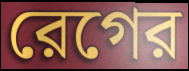
রেগের